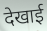
देखाई